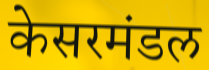
केसरमंडल